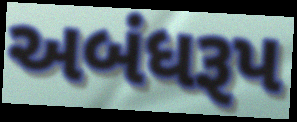
અબંધરૂપ